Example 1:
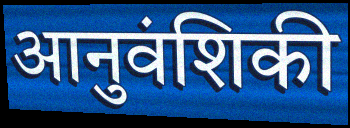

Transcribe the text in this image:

आनुवंशिकी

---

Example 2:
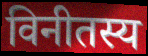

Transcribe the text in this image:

विनीतस्य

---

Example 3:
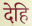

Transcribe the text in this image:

देहि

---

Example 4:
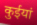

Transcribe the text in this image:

कुईयां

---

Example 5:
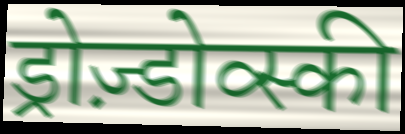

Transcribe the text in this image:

ड्रोज़्डोव्स्की